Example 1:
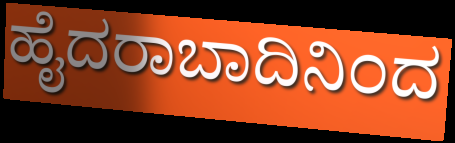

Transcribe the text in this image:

ಹೈದರಾಬಾದಿನಿಂದ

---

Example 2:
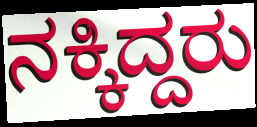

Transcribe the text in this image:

ನಕ್ಕಿದ್ದರು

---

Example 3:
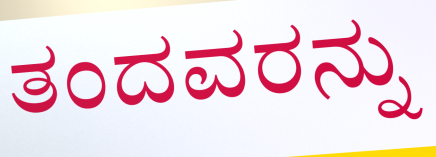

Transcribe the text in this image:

ತಂದವರನ್ನು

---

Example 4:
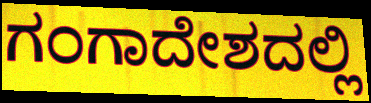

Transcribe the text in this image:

ಗಂಗಾದೇಶದಲ್ಲಿ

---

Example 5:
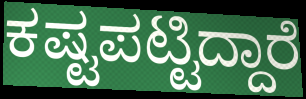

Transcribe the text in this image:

ಕಷ್ಟಪಟ್ಟಿದ್ದಾರೆ